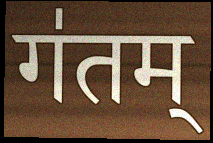
ग॑तम्